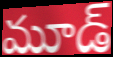
మూడ్